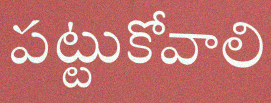
పట్టుకోవాలి